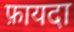
फ़ायदा